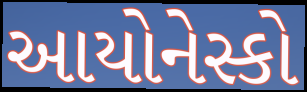
આયોનેસ્કો